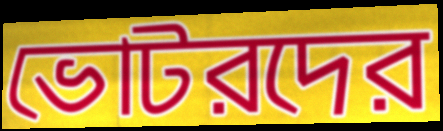
ভোটরদের